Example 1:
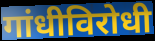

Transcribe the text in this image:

गांधीविरोधी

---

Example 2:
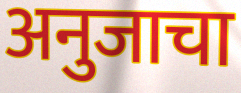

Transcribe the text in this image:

अनुजाचा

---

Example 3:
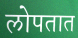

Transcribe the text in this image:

लोपतात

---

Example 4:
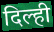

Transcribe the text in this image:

दिल्ही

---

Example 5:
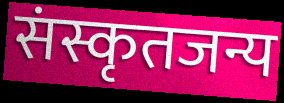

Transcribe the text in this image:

संस्कृतजन्य